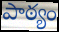
పాఠ్యం